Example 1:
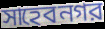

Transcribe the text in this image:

সাহেবনগর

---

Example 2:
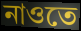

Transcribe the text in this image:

নাওতে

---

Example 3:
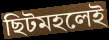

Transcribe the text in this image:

ছিটমহলেই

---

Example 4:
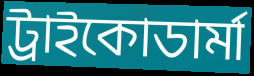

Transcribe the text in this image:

ট্রাইকোডার্মা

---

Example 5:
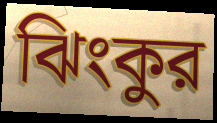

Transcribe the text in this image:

ঝিংকুর